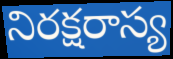
నిరక్షరాస్య